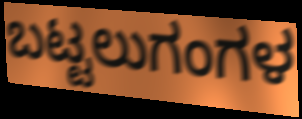
ಬಟ್ಟಲುಗಂಗಳ